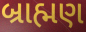
બ્રાહ્મણ